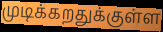
முடிக்கறதுக்குள்ள